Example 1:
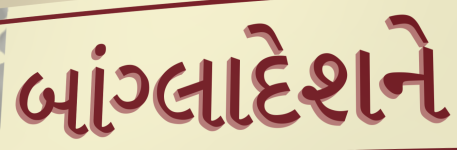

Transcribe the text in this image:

બાંગ્લાદેશને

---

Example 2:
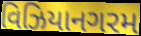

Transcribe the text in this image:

વિઝિયાનગરમ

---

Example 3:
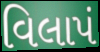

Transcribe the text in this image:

વિલાપં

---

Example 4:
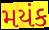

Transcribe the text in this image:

મયંક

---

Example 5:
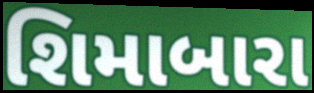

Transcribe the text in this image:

શિમાબારા